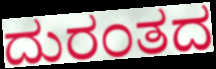
ದುರಂತದ